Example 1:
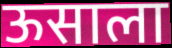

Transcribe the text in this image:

ऊसाला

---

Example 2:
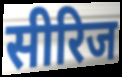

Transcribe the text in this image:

सीरिज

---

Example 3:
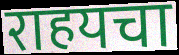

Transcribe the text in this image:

राहयचा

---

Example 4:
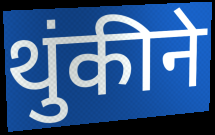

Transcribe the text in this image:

थुंकीने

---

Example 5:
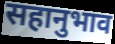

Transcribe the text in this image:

सहानुभाव